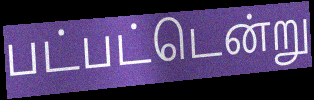
பட்பட்டென்று